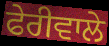
ਫੇਰੀਵਾਲੇ